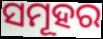
ସମୂହର